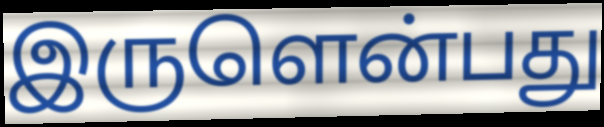
இருளென்பது